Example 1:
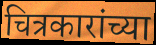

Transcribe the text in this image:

चित्रकारांच्या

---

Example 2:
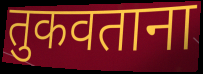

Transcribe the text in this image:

तुकवताना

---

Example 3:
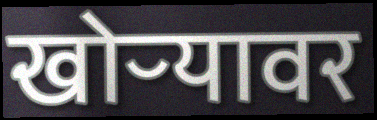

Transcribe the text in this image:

खोऱ्यावर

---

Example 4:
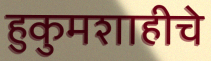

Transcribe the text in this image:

हुकुमशाहीचे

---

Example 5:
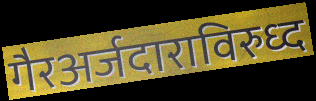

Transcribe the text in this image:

गैरअर्जदाराविरुध्द